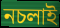
নচলাই